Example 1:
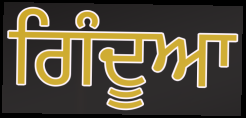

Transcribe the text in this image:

ਗਿੰਦੂਆ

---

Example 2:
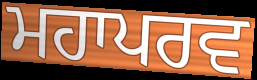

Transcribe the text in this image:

ਮਹਾਪਰਵ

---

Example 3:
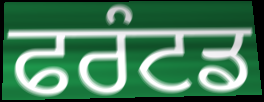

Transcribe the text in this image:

ਫਰੰਟਡ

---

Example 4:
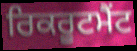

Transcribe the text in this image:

ਰਿਕਰੂਟਮੈਂਟ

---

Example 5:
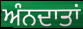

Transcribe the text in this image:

ਅੰਨਦਾਤਾਂ